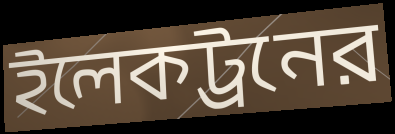
ইলেকট্রনের